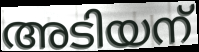
അടിയന്